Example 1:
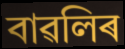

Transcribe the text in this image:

বাৱলিৰ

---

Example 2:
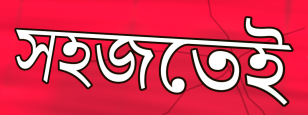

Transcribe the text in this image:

সহজতেই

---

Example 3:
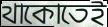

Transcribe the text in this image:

থাকোতেই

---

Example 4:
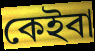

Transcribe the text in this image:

কেইবা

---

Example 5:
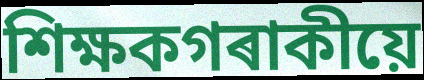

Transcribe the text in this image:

শিক্ষকগৰাকীয়ে